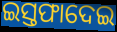
ଇସ୍ତଫାଦେଇ